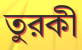
তুরকী